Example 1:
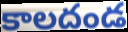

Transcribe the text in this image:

కాలదండ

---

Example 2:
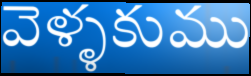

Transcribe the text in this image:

వెళ్ళకుము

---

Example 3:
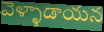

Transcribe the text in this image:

వెళ్ళాడాయన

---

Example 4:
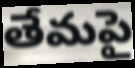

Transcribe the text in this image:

తేమపై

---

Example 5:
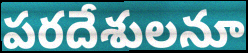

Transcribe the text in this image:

పరదేశులనూ